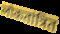
लोकतांत्रित